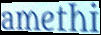
amethi